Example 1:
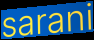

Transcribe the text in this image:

sarani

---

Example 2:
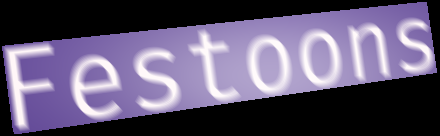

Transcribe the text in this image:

Festoons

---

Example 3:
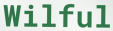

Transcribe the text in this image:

Wilful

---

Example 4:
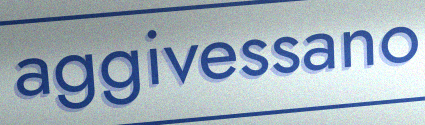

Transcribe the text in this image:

aggivessano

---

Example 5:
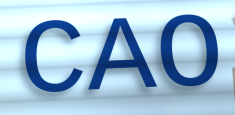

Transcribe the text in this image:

CAO